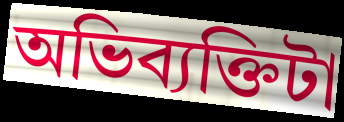
অভিব্যক্তিটা